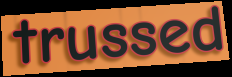
trussed